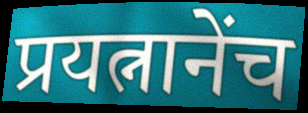
प्रयत्नानेंच